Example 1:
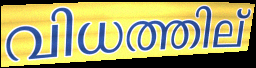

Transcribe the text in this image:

വിധത്തില്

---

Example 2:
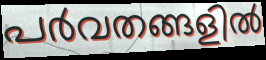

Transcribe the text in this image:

പർവതങ്ങളിൽ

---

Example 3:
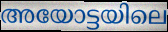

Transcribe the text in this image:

അയോട്ടയിലെ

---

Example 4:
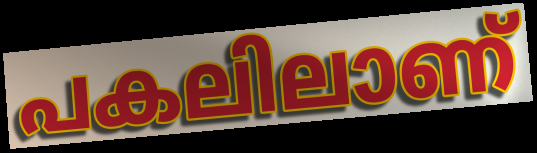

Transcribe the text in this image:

പകലിലാണ്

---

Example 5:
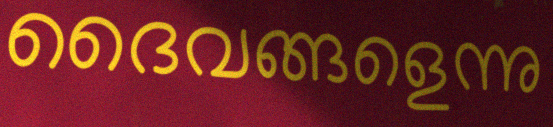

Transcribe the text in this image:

ദൈവങ്ങളെന്നു